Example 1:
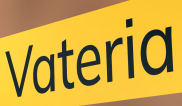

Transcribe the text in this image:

Vateria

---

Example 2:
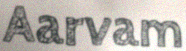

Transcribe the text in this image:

Aarvam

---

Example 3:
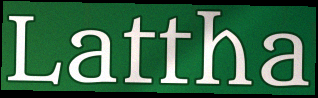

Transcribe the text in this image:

Lattha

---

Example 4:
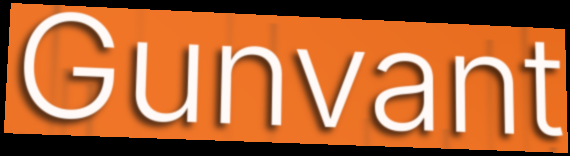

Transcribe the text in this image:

Gunvant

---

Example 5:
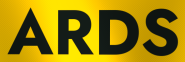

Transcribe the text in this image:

ARDS